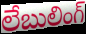
లేబులింగ్